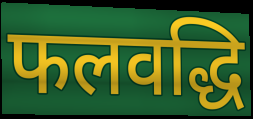
फलवद्धि